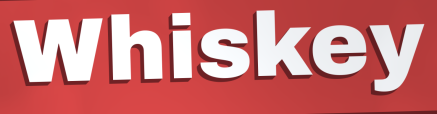
Whiskey